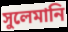
সুলেমানি